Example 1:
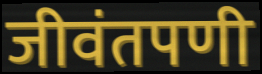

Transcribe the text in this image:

जीवंतपणी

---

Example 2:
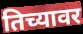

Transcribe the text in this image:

तिच्यावर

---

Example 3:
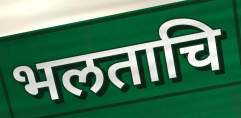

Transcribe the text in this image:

भलताचि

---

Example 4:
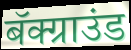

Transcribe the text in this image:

बॅक्ग्राउंड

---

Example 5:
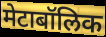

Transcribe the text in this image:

मेटाबॉलिक